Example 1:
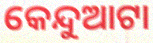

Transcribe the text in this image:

କେନ୍ଦୁଆଟା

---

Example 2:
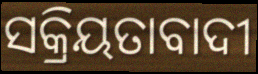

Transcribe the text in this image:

ସକ୍ରିୟତାବାଦୀ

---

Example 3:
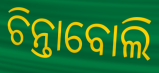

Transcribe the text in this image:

ଚିନ୍ତାବୋଲି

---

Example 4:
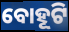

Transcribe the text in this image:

ବୋହୂଟି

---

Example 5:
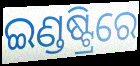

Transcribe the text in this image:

ଇଣ୍ଡଷ୍ଟ୍ରିରେ